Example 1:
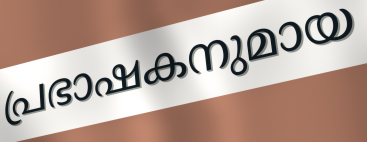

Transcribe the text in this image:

പ്രഭാഷകനുമായ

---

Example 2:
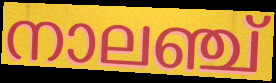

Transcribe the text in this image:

നാലഞ്ച്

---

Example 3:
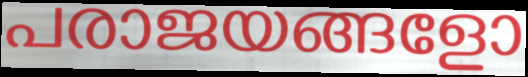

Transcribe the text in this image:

പരാജയങ്ങളോ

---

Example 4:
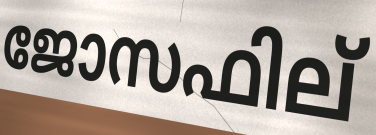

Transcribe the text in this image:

ജോസഫില്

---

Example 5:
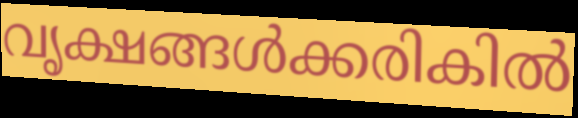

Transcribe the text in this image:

വൃക്ഷങ്ങൾക്കരികിൽ